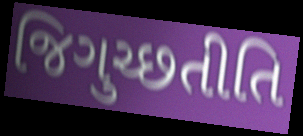
જિગુચ્છતીતિ